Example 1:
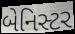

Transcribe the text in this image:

બેનિસ્ટર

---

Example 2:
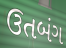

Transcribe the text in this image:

ઉતબંગ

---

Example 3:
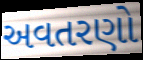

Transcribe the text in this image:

અવતરણો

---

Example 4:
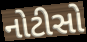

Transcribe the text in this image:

નોટીસો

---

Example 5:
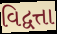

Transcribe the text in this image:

વિદ્વત્તા